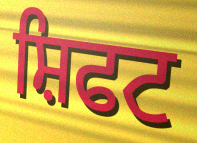
ਸ਼ਿਫਟ